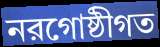
নরগোষ্ঠীগত